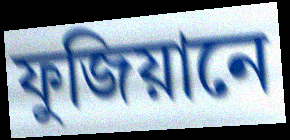
ফুজিয়ানে